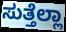
ಸುತ್ತೆಲ್ಲಾ